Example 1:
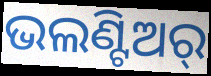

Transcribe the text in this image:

ଭଲଣ୍ଟିଅର୍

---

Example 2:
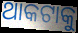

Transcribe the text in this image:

ଥାକଟାକୁ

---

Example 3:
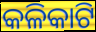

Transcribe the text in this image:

କଳିକାଟି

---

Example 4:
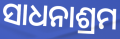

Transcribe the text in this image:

ସାଧନାଶ୍ରମ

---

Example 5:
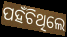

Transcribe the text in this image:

ପହଁଚିଥିଲେ